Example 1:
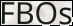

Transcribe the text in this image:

FBOs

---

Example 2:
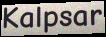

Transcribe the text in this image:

Kalpsar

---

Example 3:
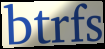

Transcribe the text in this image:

btrfs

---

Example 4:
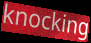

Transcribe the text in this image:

knocking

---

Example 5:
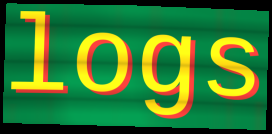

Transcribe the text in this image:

logs